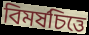
বিমর্ষচিত্তে